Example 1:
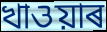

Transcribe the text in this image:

খাওয়াৰ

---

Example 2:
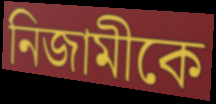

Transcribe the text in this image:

নিজামীকে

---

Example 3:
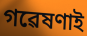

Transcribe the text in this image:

গৱেষণাই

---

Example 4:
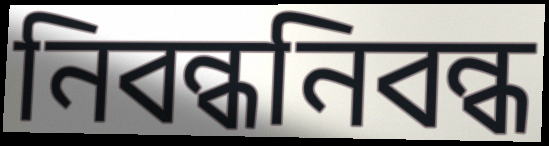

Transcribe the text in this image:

নিবন্ধনিবন্ধ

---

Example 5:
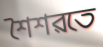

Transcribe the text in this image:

শৈশৱতে